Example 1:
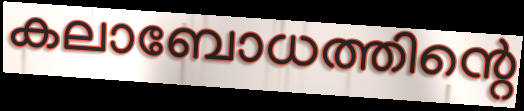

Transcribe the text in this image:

കലാബോധത്തിന്റെ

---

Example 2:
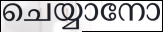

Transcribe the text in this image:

ചെയ്യാനോ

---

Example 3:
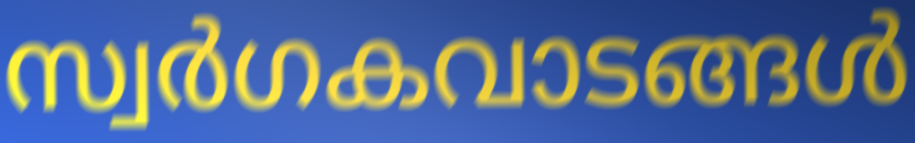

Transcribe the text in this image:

സ്വർഗകവാടങ്ങൾ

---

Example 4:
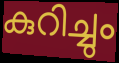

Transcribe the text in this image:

കുറിച്ചും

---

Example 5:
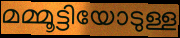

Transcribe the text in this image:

മമ്മൂട്ടിയോടുള്ള